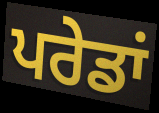
ਪਰੇਡਾਂ